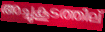
അച്ചുകൂടത്തില്